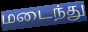
மடைந்து